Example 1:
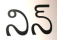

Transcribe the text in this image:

నిన్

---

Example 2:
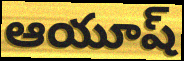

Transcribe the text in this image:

ఆయూష్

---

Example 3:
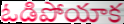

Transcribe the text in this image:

ఓడిపోయాక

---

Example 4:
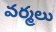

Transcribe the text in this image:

వర్మలు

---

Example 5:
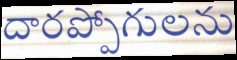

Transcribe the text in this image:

దారప్పోగులను